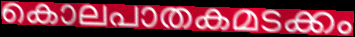
കൊലപാതകമടക്കം